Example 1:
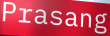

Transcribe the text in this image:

Prasang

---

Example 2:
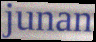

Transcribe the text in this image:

junan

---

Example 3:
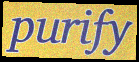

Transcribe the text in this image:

purify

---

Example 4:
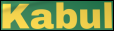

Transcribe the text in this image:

Kabul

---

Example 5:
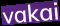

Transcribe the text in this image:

vakai